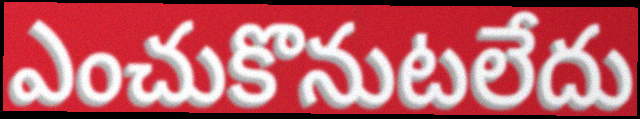
ఎంచుకొనుటలేదు